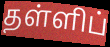
தள்ளிப்